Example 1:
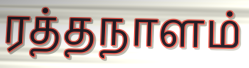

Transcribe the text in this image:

ரத்தநாளம்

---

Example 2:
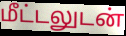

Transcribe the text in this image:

மீட்டலுடன்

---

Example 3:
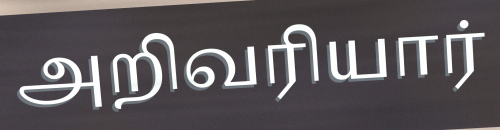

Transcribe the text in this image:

அறிவரியார்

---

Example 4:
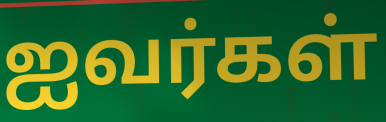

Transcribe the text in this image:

ஐவர்கள்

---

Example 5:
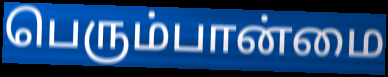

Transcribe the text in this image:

பெரும்பான்மை